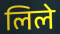
लिले